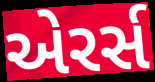
એરર્સ